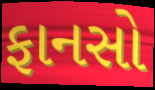
ફાનસો